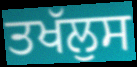
ਤਖੱਲੁਸ